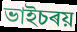
ভাইচৰয়